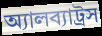
অ্যালব্যাট্রস